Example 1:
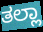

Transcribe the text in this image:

ತಲ್ಲಾ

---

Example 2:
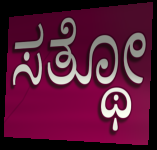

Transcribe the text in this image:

ಸತ್ಥೋ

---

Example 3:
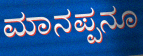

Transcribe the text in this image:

ಮಾನಪ್ಪನೂ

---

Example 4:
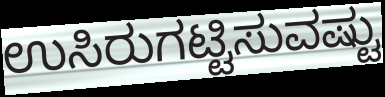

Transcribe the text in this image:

ಉಸಿರುಗಟ್ಟಿಸುವಷ್ಟು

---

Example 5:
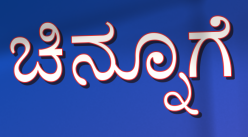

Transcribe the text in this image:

ಚಿನ್ನೂಗೆ